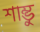
শাম্ভু